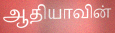
ஆதியாவின்